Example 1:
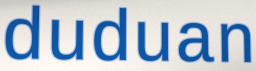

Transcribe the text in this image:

duduan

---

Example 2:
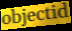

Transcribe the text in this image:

objectid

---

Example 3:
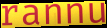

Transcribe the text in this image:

rannu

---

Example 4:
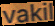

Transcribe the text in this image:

vakil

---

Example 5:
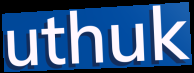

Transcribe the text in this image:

uthuk